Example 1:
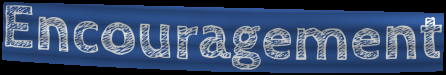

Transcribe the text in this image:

Encouragement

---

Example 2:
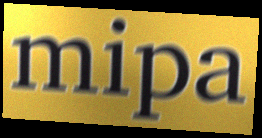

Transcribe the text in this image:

mipa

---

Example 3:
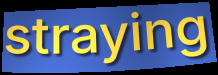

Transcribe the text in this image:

straying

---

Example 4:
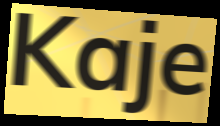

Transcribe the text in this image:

Kaje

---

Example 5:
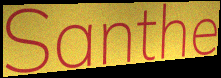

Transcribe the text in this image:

Santhe